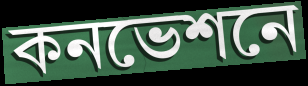
কনভেশনে